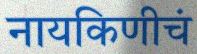
नायकिणीचं